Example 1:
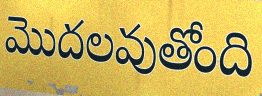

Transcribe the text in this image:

మొదలవుతోంది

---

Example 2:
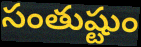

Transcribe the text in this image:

సంతుష్టుం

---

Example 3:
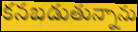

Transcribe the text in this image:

కనబడుతున్నాను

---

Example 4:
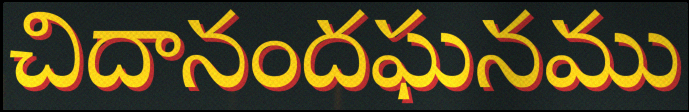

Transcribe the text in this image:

చిదానందఘనము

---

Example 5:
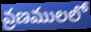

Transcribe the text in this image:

వ్రణములలో